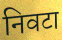
निवटा